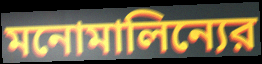
মনোমালিন্যের